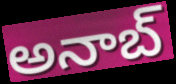
అనాబ్